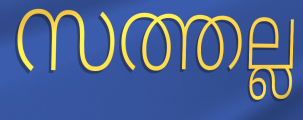
സത്തല്ല